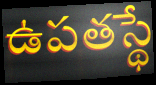
ఉపతస్థే